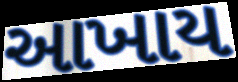
આખાય